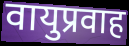
वायुप्रवाह